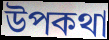
উপকথা